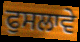
ਫੁਸਲਾਵੇ